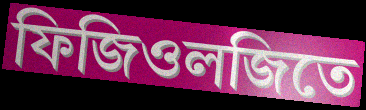
ফিজিওলজিতে